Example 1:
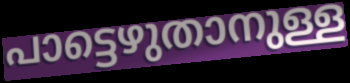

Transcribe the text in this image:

പാട്ടെഴുതാനുള്ള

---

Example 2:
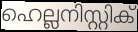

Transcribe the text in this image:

ഹെല്ലനിസ്റ്റിക്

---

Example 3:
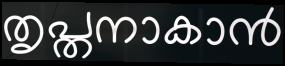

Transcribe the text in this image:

തൃപ്തനാകാൻ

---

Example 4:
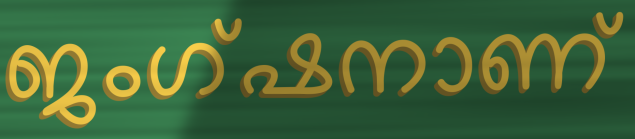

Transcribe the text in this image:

ജംഗ്ഷനാണ്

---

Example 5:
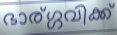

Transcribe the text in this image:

ഭാര്ഗ്ഗവിക്ക്